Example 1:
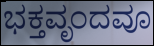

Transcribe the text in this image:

ಭಕ್ತವೃಂದವೂ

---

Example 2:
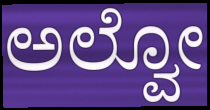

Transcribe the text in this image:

ಅಲ್ವೋ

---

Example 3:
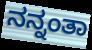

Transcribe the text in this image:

ನನ್ನಂತಾ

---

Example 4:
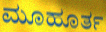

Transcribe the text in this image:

ಮೂಹೂರ್ತ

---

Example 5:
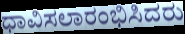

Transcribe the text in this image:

ಧಾವಿಸಲಾರಂಭಿಸಿದರು